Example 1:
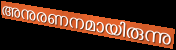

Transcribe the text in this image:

അനുരണനമായിരുന്നു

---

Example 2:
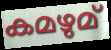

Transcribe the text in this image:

കമഴുമ്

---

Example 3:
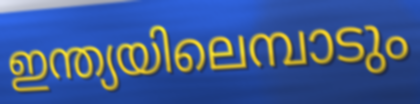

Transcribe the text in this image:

ഇന്ത്യയിലെമ്പാടും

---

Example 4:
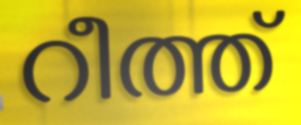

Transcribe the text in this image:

റീത്ത്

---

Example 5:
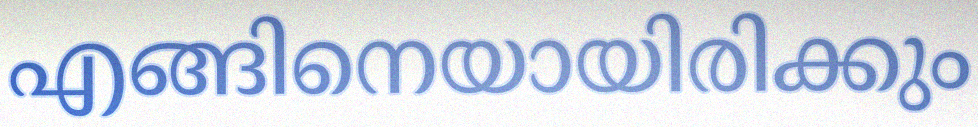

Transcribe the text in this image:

എങ്ങിനെയായിരിക്കും